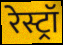
रेस्ट्रॉ